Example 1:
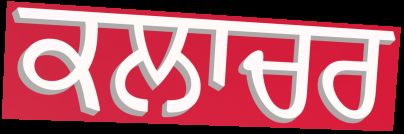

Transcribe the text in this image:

ਕਲਾਚਰ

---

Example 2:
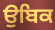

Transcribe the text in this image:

ਉਬਿਕ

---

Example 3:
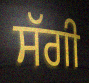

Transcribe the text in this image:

ਸੱਗੀ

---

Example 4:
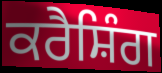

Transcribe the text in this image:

ਕਰੈਸ਼ਿੰਗ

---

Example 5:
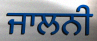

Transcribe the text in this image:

ਜਾਲਨੀ